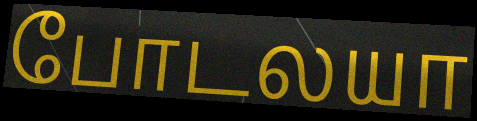
போடலயா